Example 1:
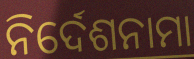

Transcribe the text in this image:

ନିର୍ଦେଶନାମା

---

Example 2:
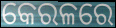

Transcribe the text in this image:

କେରଳରେ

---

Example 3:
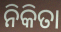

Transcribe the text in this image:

ନିକିତା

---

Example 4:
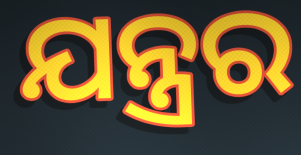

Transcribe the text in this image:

ଯନ୍ତ୍ରର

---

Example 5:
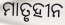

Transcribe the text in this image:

ମାତୃହୀନ